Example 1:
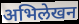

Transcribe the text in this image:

अभिलेखन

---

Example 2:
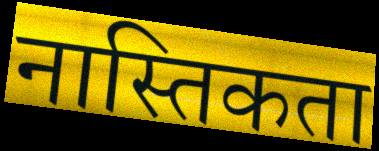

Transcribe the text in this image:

नास्तिकता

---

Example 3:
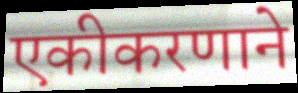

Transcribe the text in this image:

एकीकरणाने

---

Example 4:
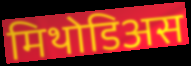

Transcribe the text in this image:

मिथोडिअस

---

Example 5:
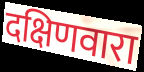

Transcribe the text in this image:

दक्षिणवारा